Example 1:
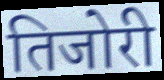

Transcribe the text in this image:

तिजोरी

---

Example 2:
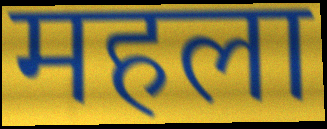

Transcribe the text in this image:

महला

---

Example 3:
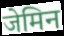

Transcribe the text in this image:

जेमिन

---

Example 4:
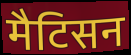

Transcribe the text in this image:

मैटिसन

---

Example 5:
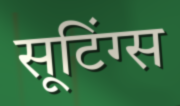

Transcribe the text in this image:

सूटिंग्स